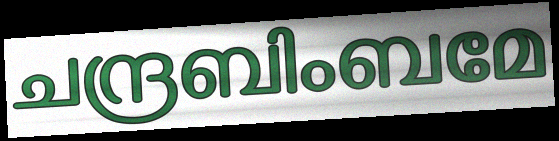
ചന്ദ്രബിംബമേ